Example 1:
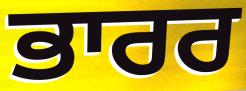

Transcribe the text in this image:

ਭਾਰਰ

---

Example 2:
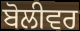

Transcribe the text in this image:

ਬੋਲੀਵਰ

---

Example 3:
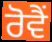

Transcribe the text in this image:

ਰੋਵੈਂ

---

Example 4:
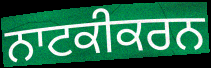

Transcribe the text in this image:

ਨਾਟਕੀਕਰਨ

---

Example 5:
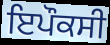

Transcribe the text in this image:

ਇਪੌਕਸੀ